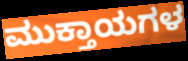
ಮುಕ್ತಾಯಗಳ